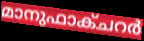
മാനുഫാക്ചറർ